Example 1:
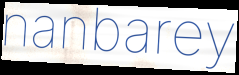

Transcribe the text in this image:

nanbarey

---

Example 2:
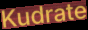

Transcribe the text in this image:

Kudrate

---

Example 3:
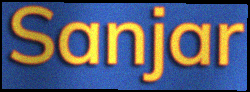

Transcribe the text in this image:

Sanjar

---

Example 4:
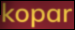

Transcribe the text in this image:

kopar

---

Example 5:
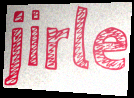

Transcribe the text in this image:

jirle